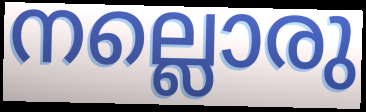
നല്ലൊരു